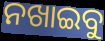
ନଖାଇବୁ